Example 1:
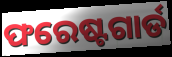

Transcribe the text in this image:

ଫରେଷ୍ଟଗାର୍ଡ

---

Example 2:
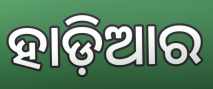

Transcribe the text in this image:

ହାଡ଼ିଆର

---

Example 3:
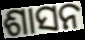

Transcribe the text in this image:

ଶାସନ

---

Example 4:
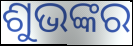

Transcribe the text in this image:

ଶୁଭଙ୍କର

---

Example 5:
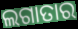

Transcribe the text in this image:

ଲଗାତାର